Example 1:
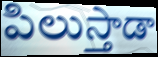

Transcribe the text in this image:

పిలుస్తాడా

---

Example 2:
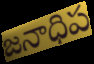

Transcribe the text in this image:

జనాధిప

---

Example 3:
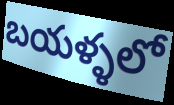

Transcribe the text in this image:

బయళ్ళలో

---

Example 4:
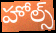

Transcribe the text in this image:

హోల్స్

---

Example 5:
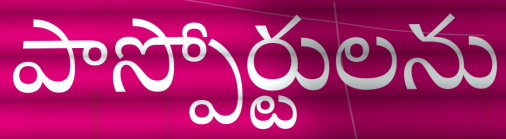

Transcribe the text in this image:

పాస్పోర్టులను